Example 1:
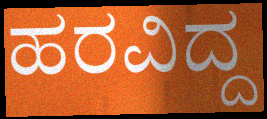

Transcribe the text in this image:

ಹರವಿದ್ದ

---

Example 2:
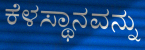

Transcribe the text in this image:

ಕೆಳಸ್ಥಾನವನ್ನು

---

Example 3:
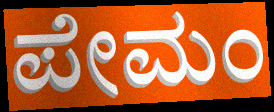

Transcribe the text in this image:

ಪೇಮಂ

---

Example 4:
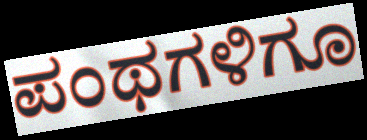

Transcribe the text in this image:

ಪಂಥಗಳಿಗೂ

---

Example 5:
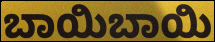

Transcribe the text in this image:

ಬಾಯಿಬಾಯಿ